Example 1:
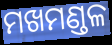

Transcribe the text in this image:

ମଖମଣ୍ଡଳ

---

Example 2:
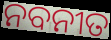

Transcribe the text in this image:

ନବନୀତ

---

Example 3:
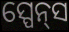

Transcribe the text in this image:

ସ୍ପେନ୍‌ସ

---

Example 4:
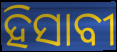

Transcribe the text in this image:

ହିସାବୀ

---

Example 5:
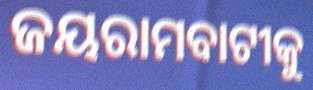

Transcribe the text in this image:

ଜୟରାମବାଟୀକୁ